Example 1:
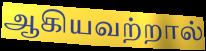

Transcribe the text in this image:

ஆகியவற்றால்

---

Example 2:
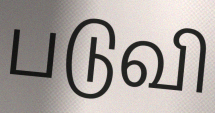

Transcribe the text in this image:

படுவி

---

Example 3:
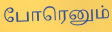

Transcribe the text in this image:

போரெனும்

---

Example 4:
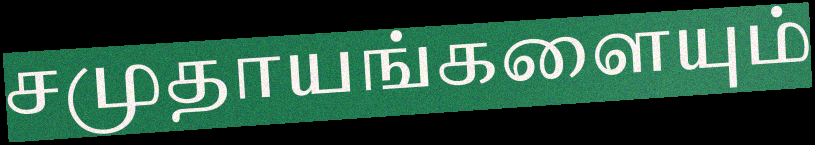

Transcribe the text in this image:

சமுதாயங்களையும்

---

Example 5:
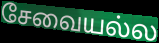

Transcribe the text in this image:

சேவையல்ல